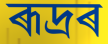
ৰূদ্ৰৰ